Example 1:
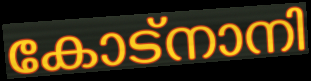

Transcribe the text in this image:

കോട്നാനി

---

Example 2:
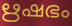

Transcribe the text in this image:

ഋഷഭം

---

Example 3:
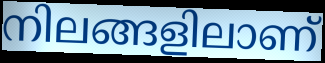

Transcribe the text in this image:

നിലങ്ങളിലാണ്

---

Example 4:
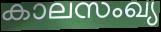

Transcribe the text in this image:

കാലസംഖ്യ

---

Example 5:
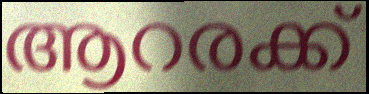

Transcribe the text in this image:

ആറരക്ക്